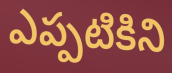
ఎప్పటికిని